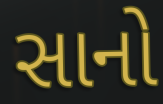
સાનો